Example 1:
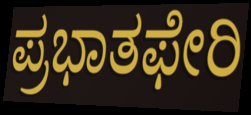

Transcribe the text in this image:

ಪ್ರಭಾತಫೇರಿ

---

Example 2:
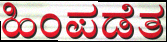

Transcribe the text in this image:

ಹಿಂಪಡೆತ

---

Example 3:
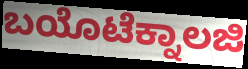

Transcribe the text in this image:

ಬಯೊಟೆಕ್ನಾಲಜಿ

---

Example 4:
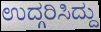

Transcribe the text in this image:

ಉದ್ಗರಿಸಿದ್ದು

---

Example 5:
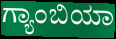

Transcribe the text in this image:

ಗ್ಯಾಂಬಿಯಾ